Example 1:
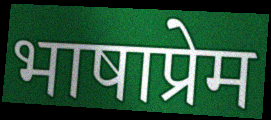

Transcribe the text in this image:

भाषाप्रेम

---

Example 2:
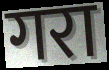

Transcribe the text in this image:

गरा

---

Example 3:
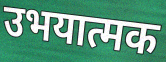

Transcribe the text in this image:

उभयात्मक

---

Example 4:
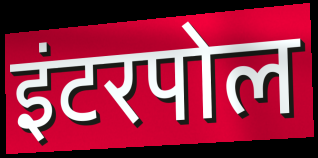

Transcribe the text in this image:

इंटरपोल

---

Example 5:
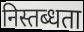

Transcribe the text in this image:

निस्तब्धता